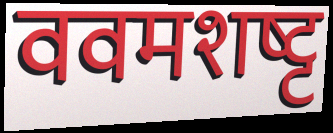
ववमशष्ट्ट